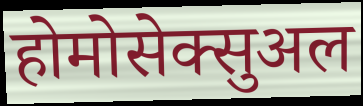
होमोसेक्सुअल